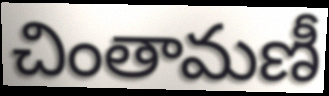
చింతామణీ